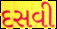
દસવી